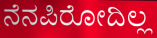
ನೆನಪಿರೋದಿಲ್ಲ